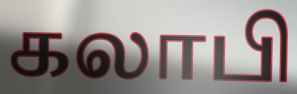
கலாபி